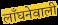
लाँघनेवाली